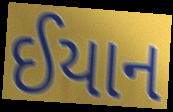
ઈયાન